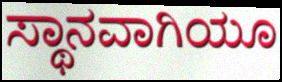
ಸ್ಥಾನವಾಗಿಯೂ